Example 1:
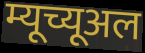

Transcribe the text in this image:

म्यूच्यूअल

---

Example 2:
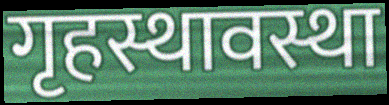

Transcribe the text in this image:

गृहस्थावस्था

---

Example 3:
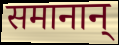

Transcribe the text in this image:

समानान्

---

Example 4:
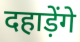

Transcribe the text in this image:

दहाड़ेंगे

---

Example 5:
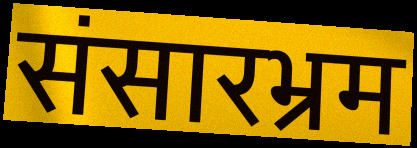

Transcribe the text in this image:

संसारभ्रम